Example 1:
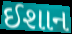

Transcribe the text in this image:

ઈશાન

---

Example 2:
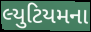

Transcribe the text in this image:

લ્યુટિયમના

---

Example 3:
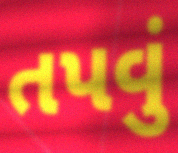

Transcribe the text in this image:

તપવું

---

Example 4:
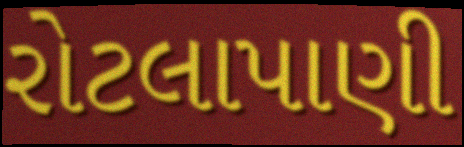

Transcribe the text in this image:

રોટલાપાણી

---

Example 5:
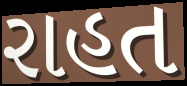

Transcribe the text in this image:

રાહત